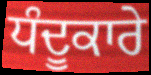
ਧੰਦੂਕਾਰੇ